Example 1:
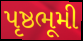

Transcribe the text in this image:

પૃષ્ઠભૂમી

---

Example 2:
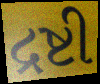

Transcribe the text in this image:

દ્રષ્ટી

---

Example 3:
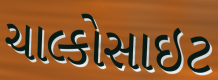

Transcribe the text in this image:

ચાલ્કોસાઇટ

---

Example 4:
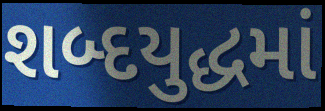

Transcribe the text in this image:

શબ્દયુદ્ધમાં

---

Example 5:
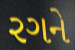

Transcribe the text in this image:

રગને